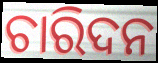
ଚାରିଦନ